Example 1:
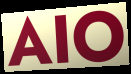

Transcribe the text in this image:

AIO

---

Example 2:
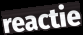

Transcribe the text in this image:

reactie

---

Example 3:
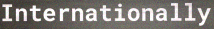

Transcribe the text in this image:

Internationally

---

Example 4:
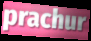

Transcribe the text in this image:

prachur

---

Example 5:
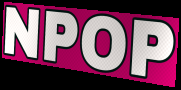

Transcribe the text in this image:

NPOP